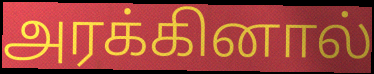
அரக்கினால்